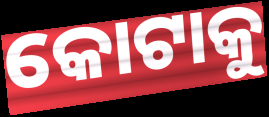
କୋଟାକୁ